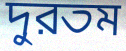
দুরতম